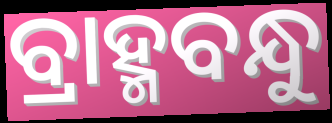
ବ୍ରାହ୍ମବନ୍ଧୁ